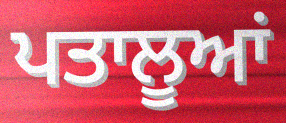
ਪਤਾਲੂਆਂ